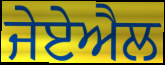
ਜੇਏਐਲ